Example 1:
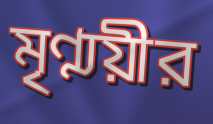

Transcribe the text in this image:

মৃণ্ময়ীর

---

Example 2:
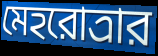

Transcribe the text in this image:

মেহরোত্রার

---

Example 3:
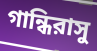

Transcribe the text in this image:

গান্ধিরাসু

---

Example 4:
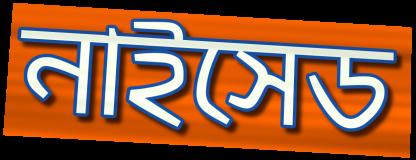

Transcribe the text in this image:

নাইসেড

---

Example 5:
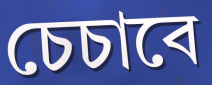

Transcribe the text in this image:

চেচাবে